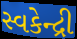
સ્વકેન્દ્રી